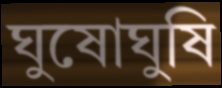
ঘুষোঘুষি